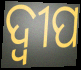
ଦ୍ବୀପ